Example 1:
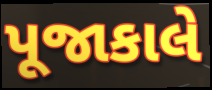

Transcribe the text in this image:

પૂજાકાલે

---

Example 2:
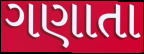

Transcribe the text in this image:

ગણાતા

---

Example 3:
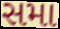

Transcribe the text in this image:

સમા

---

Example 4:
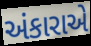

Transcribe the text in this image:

અંકારાએ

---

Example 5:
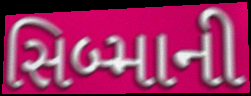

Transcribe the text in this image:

સિબ્માની